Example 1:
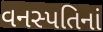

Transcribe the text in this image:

વનસ્પતિનાં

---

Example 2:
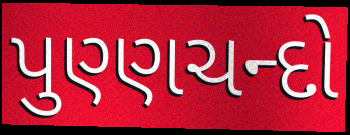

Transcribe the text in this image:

પુણ્ણચન્દો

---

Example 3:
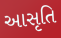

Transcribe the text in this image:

આસૃતિ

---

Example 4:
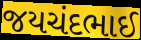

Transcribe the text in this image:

જયચંદભાઈ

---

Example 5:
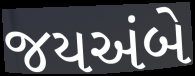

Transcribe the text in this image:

જયઅંબે